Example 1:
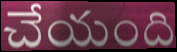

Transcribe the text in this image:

చేయంది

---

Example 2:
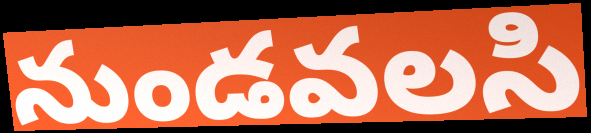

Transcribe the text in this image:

నుండవలసి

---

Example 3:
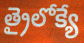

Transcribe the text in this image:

త్రైలోక్యే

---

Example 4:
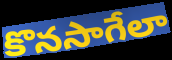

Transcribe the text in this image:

కొనసాగేలా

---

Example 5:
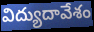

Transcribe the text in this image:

విద్యుదావేశం